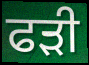
ਫੜੀ